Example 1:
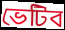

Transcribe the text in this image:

ভেটিব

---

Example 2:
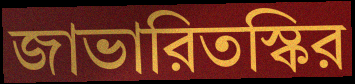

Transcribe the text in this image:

জাভারিতস্কির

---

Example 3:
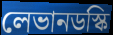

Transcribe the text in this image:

লেভানডস্কি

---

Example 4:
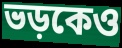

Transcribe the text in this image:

ভড়কেও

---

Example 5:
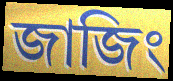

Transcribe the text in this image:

জাজিং